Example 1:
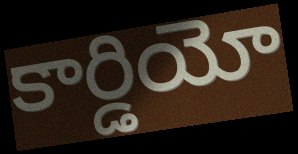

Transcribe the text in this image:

కార్డియో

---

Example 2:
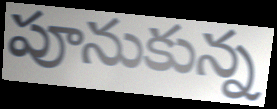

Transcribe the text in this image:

పూనుకున్న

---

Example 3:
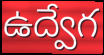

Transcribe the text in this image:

ఉద్వేగ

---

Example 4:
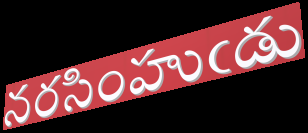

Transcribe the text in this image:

నరసింహుఁడు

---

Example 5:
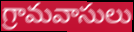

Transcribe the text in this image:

గ్రామవాసులు